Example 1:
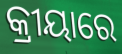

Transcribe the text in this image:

କ୍ରୀୟାରେ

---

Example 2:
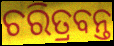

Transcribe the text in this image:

ଚରିତ୍ରବନ୍ତ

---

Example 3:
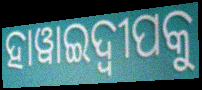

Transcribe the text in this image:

ହାୱାଇଦ୍ଵୀପକୁ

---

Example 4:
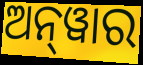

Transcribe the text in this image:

ଅନ୍‌ୱାର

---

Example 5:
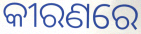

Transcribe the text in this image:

କୀରଣରେ